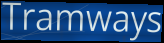
Tramways